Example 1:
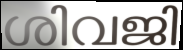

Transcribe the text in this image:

ശിവജി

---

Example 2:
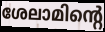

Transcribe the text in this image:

ശേലാമിന്റെ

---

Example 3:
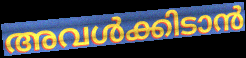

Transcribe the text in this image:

അവൾക്കിടാൻ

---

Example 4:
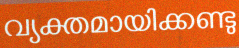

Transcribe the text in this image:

വ്യക്തമായിക്കണ്ടു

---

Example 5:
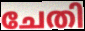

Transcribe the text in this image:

ചേതി